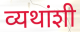
व्यथांशी